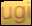
ugi